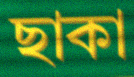
ছাকা